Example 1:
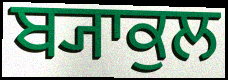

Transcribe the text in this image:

ਬ੍ਯਾਕੁਲ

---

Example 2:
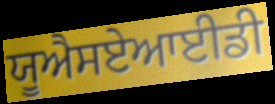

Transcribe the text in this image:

ਯੂਐਸਏਆਈਡੀ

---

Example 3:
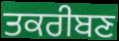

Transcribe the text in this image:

ਤਕਰੀਬਣ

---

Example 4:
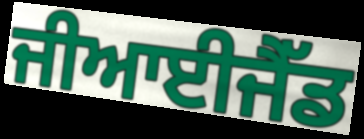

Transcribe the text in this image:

ਜੀਆਈਜੈੱਡ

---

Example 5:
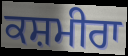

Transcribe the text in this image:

ਕਸ਼ਮੀਰਾ